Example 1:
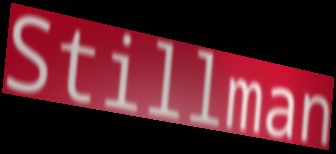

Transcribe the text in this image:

Stillman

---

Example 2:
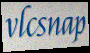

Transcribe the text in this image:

vlcsnap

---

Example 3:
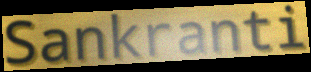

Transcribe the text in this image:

Sankranti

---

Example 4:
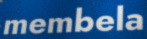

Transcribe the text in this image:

membela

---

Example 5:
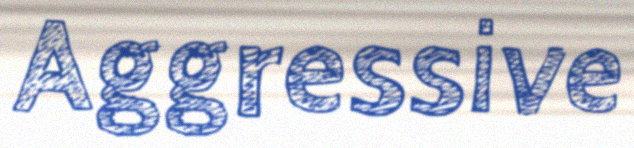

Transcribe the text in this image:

Aggressive